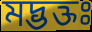
মদ্ভক্তঃ